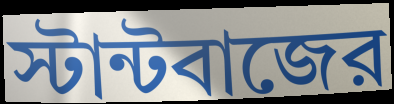
স্টান্টবাজের